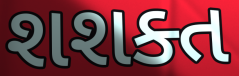
શશક્ત